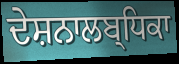
ਦੇਸ਼ਨਾਲਬ੍ਧਿਕਾ